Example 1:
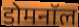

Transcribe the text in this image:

डोमनॉल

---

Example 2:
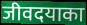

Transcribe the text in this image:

जीवदयाका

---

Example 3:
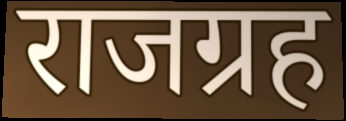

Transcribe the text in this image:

राजग्रह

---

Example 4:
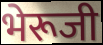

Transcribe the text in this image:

भेरूजी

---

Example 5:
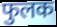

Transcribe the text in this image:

फुलक